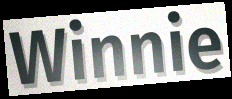
Winnie